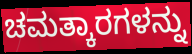
ಚಮತ್ಕಾರಗಳನ್ನು